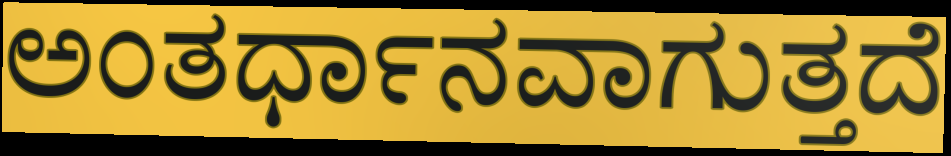
ಅಂತರ್ಧಾನವಾಗುತ್ತದೆ